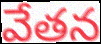
వేతన